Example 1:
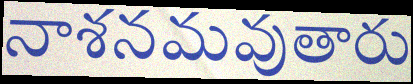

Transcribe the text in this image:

నాశనమవుతారు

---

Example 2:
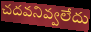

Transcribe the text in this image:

చదవనివ్వలేదు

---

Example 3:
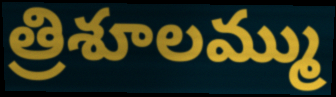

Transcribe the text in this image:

త్రిశూలమ్ము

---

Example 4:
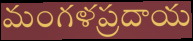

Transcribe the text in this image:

మంగళప్రదాయ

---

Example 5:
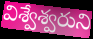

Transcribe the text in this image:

విశ్వేశ్వరుని